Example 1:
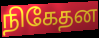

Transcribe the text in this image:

நிகேதன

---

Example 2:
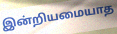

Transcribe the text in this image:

இன்றியமையாத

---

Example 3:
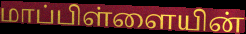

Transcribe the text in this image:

மாப்பிள்ளையின்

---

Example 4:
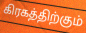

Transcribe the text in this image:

கிரகத்திற்கும்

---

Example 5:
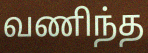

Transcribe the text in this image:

வணிந்த